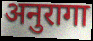
अनुरागा